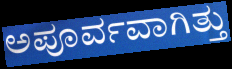
ಅಪೂರ್ವವಾಗಿತ್ತು